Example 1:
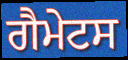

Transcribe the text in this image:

ਗੈਮੇਟਸ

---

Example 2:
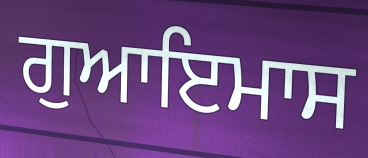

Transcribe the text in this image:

ਗੁਆਇਮਾਸ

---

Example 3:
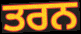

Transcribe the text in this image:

ਤਰਨ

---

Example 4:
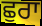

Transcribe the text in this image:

ਛੁਰਾ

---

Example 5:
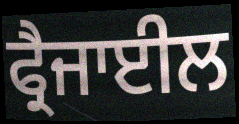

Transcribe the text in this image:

ਫ੍ਰੈਜਾਈਲ